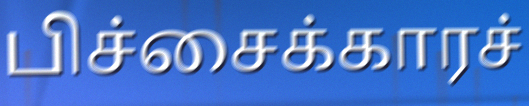
பிச்சைக்காரச்